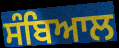
ਸੰਬਿਆਲ